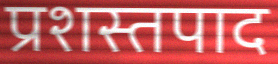
प्रशस्तपाद